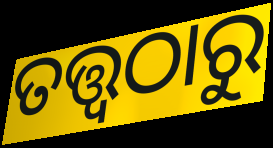
ତତ୍ତ୍ବଠାରୁ